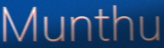
Munthu